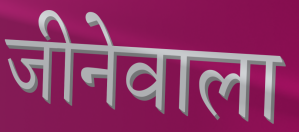
जीनेवाला